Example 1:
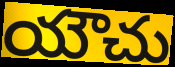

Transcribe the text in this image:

యౌచు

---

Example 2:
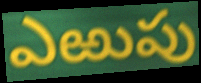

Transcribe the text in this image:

ఎఱుపు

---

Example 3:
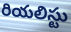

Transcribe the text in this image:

రియలిస్టు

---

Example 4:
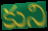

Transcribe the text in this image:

కుని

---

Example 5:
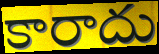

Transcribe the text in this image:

కారాదు